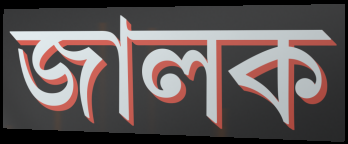
জালক